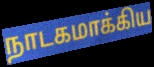
நாடகமாக்கிய